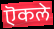
ऎकले